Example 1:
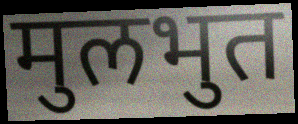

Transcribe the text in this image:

मुलभुत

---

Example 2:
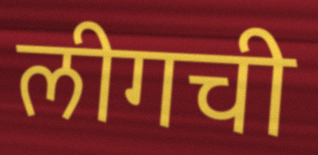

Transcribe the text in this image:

लीगची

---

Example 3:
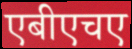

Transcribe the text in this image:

एबीएचए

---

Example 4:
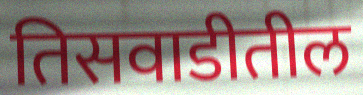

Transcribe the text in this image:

तिसवाडीतील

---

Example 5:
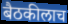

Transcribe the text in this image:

बैठकीलाच